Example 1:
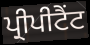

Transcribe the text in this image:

ਪ੍ਰੀਪੀਟੈਂਟ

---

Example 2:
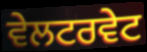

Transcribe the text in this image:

ਵੇਲਟਰਵੇਟ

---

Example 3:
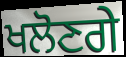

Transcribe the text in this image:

ਖਲੋਣਗੇ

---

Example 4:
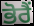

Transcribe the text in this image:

ਭੋਰੈਂ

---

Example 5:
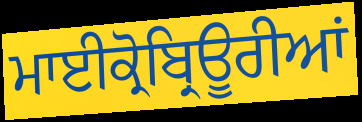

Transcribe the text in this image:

ਮਾਈਕ੍ਰੋਬ੍ਰਿਊਰੀਆਂ